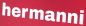
hermanni